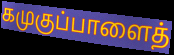
கமுகுப்பாளைத்